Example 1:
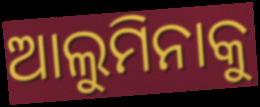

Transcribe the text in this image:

ଆଲୁମିନାକୁ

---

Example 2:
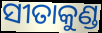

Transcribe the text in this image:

ସୀତାକୁଣ୍ଡ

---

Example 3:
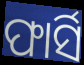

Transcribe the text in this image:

ଫାର୍ସି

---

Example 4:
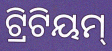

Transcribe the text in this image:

ଟ୍ରିଟିୟମ୍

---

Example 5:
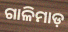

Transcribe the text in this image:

ଗାଳିମାଡ଼